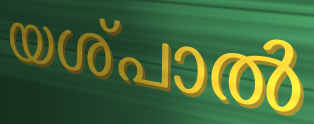
യശ്പാൽ